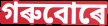
গৰুবোৰে